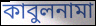
কাবুলনামা